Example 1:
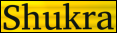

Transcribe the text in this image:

Shukra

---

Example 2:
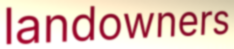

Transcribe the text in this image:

landowners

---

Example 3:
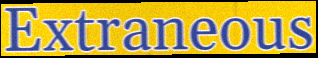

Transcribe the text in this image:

Extraneous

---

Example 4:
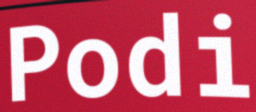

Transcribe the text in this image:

Podi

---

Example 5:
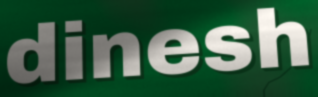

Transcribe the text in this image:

dinesh